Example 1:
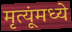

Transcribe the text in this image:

मृत्यूंमध्ये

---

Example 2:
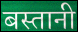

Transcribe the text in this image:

बस्तानी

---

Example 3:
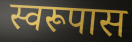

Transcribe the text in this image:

स्वरूपास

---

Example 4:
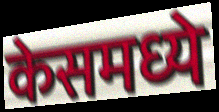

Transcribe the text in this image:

केसमध्ये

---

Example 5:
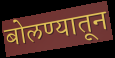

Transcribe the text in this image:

बोलण्यातून